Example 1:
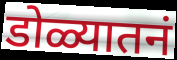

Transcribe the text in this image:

डोळ्यातनं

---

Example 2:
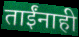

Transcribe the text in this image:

ताईंनाही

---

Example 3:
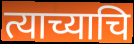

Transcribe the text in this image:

त्याच्याचि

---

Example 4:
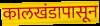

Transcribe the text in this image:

कालखंडापासून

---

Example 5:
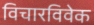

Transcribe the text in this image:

विचारविवेक